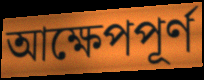
আক্ষেপপূর্ণ